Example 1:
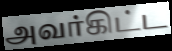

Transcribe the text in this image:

அவர்கிட்ட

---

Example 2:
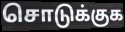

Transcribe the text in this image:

சொடுக்குக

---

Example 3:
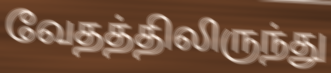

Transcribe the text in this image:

வேதத்திலிருந்து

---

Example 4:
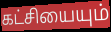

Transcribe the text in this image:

கட்சியையும்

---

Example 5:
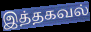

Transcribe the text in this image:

இத்தகவல்